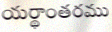
యర్థాంతరము